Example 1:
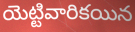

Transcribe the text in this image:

యెట్టివారికయిన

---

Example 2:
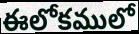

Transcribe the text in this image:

ఈలోకములో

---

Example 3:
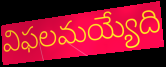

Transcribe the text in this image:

విఫలమయ్యేది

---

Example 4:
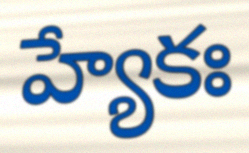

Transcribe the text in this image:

హ్యేకః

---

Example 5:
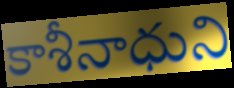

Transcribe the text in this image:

కాశీనాధుని